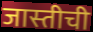
जास्तीची